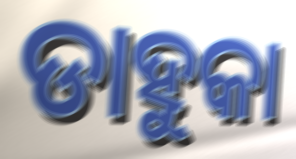
ଡାହୁକା